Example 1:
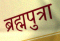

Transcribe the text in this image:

ब्रह्मपुत्रा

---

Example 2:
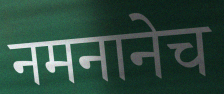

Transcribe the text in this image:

नमनानेच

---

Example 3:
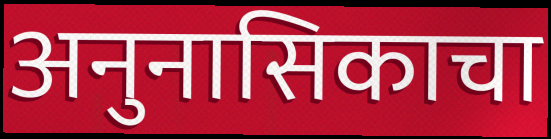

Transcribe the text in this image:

अनुनासिकाचा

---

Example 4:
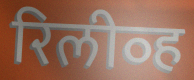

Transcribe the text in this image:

रिलीव्ह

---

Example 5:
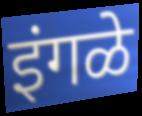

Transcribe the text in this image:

इंगळे